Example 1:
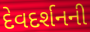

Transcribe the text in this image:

દેવદર્શનની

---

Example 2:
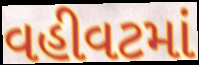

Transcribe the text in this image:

વહીવટમાં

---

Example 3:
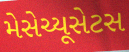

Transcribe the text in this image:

મેસેચ્યૂસેટસ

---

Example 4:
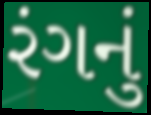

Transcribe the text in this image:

રંગનું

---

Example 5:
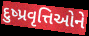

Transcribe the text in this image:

દુષ્પ્રવૃત્તિઓને